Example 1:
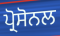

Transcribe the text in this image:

ਪ੍ਰੋਸੋਨਲ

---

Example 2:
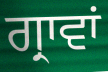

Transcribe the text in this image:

ਗ੍ਰਾਵਾਂ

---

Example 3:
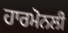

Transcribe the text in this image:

ਹਾਰਮੋਨਲੀ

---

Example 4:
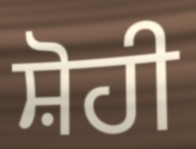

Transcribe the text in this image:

ਸ਼ੋਹੀ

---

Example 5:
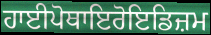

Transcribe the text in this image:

ਹਾਈਪੋਥਾਇਰੋਇਡਿਜ਼ਮ